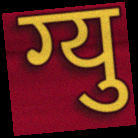
ग्यु